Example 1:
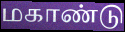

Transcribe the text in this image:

மகாண்டு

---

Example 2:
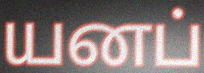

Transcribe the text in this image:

யனப்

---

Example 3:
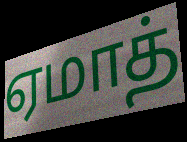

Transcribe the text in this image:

ஏமாத்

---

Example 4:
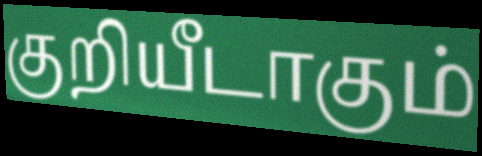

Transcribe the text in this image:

குறியீடாகும்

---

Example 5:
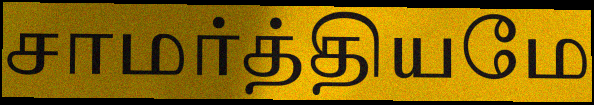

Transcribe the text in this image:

சாமர்த்தியமே